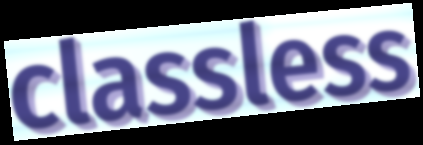
classless